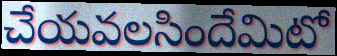
చేయవలసిందేమిటో